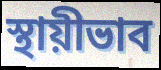
স্থায়ীভাব